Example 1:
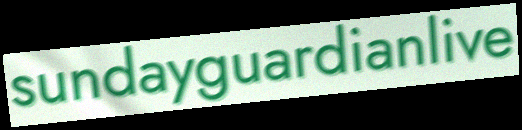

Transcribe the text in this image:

sundayguardianlive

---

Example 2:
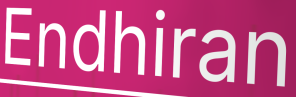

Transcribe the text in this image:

Endhiran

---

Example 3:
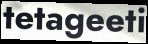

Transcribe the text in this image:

tetageeti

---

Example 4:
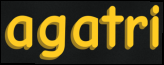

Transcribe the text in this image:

agatri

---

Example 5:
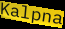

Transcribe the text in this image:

Kalpna